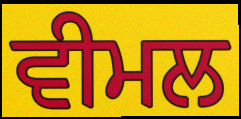
ਵੀਮਲ